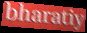
bharatiy